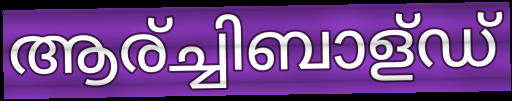
ആര്ച്ചിബാള്ഡ്